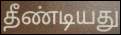
தீண்டியது